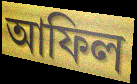
আফিল